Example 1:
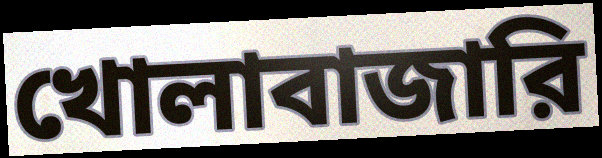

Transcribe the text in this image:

খোলাবাজারি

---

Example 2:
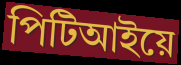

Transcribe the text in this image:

পিটিআইয়ে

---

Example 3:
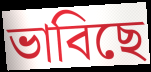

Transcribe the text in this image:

ভাবিছে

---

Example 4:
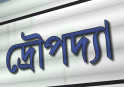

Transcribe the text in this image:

দ্রৌপদ্যা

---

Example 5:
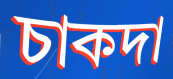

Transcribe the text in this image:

চাকদা